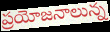
ప్రయోజనాలున్న